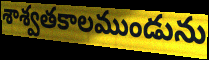
శాశ్వతకాలముండును